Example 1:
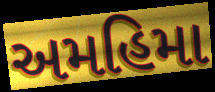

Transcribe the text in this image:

અમહિમા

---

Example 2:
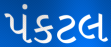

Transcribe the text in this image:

પંકટલ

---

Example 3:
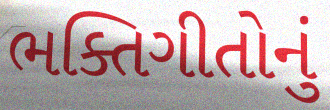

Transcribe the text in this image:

ભક્તિગીતોનું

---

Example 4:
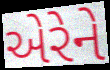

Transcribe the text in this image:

એરેને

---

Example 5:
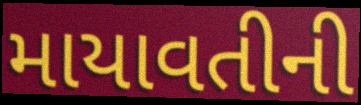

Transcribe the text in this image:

માયાવતીની